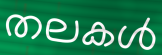
തലകൾ